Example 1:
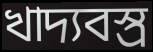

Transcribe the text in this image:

খাদ্যবস্ত্র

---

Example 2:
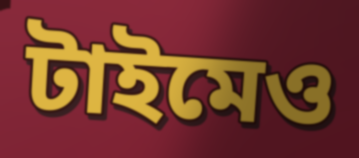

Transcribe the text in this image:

টাইমেও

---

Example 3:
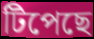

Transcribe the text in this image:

টিপেছে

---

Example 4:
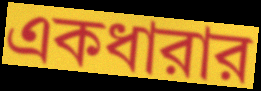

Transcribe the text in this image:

একধারার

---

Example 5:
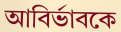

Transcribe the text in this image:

আবির্ভাবকে